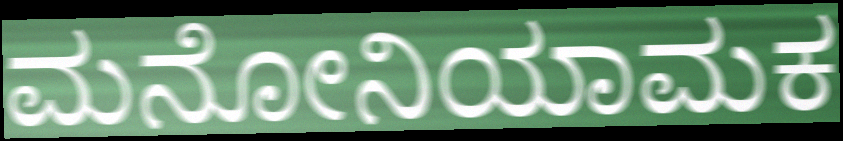
ಮನೋನಿಯಾಮಕ